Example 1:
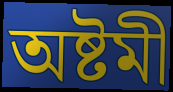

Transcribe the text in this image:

অষ্টমী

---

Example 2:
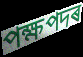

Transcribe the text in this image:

পক্ষপদৰ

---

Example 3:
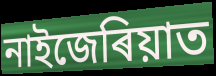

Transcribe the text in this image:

নাইজেৰিয়াত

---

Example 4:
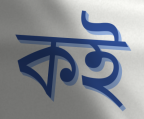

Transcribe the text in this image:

কই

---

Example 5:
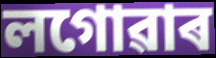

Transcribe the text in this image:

লগোৱাৰ